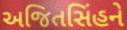
અજિતસિંહને